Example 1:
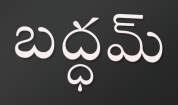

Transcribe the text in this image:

బద్ధమ్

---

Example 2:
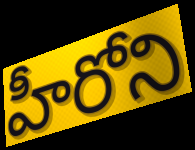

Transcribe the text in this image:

హీరోని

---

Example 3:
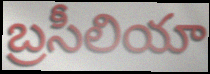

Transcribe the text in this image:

బ్రసీలియా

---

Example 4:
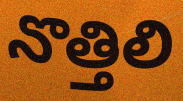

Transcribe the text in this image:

నొత్తిలి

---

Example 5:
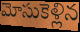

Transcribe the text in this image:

మోసుకెళ్లిన